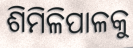
ଶିମିଳିପାଳକୁ